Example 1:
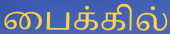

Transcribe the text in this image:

பைக்கில்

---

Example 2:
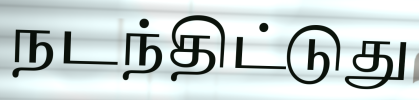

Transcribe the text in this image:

நடந்திட்டுது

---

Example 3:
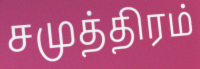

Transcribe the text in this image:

சமுத்திரம்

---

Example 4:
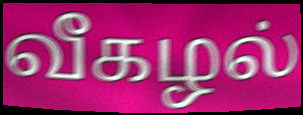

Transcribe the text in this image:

வீகழல்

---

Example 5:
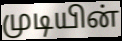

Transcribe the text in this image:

முடியின்